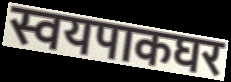
स्वयपाकघर